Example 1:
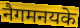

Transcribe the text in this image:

नैगमनयके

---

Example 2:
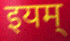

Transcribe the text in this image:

इयम्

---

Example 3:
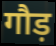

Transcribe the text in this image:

गौड़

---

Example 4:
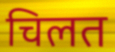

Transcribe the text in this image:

चिलत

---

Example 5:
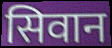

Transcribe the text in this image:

सिवान